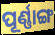
ପୂର୍ଣ୍ଣାଙ୍ଗ